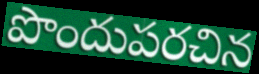
పొందుపరచిన